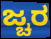
ಜ್ಚರ